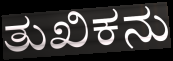
ತುಖಿಕನು